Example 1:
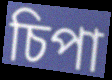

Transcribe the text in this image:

চিপা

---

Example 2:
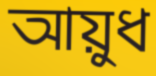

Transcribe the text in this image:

আয়ুধ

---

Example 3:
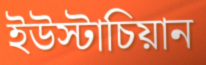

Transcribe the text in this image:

ইউস্টাচিয়ান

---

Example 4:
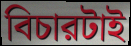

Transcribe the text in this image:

বিচারটাই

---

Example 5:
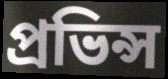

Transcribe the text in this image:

প্রভিন্স